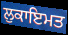
ਲੁਕਾਇਮਤ